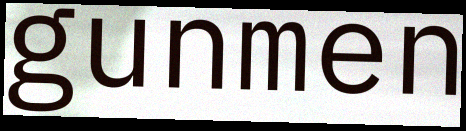
gunmen